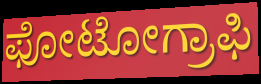
ಫೋಟೋಗ್ರಾಫಿ